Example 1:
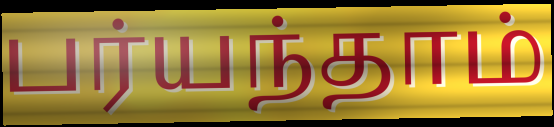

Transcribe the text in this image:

பர்யந்தாம்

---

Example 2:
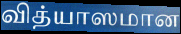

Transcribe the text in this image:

வித்யாஸமான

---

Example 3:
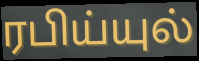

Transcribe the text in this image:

ரபிய்யுல்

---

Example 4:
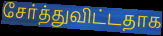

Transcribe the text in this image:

சேர்த்துவிட்டதாக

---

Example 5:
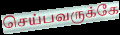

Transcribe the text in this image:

செய்பவருக்கே